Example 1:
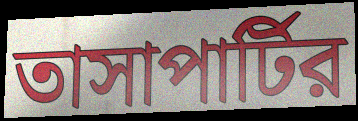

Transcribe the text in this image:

তাসাপার্টির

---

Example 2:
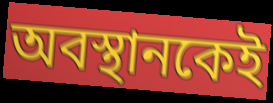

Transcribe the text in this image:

অবস্থানকেই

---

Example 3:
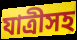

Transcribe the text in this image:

যাত্রীসহ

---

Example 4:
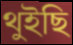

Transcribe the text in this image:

থুইছি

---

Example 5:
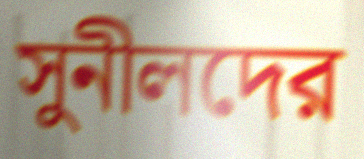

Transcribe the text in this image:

সুনীলদের